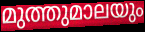
മുത്തുമാലയും